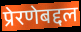
प्रेरणेबद्दल